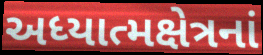
અધ્યાત્મક્ષેત્રનાં